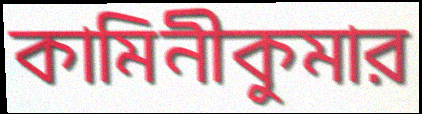
কামিনীকুমার